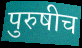
पुरुषीच